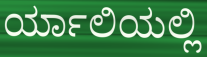
ರ್ಯಾಲಿಯಲ್ಲಿ